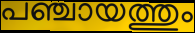
പഞ്ചായത്തും